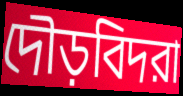
দৌড়বিদরা